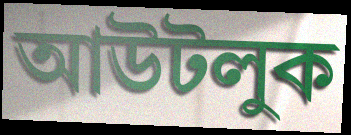
আউটলুক